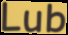
Lub